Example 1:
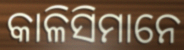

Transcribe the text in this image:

କାଳିସିମାନେ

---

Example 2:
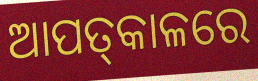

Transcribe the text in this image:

ଆପତ୍‌କାଳରେ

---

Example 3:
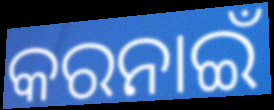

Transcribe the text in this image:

କରନାଇଁ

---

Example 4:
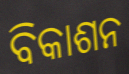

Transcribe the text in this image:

ବିକାଶନ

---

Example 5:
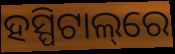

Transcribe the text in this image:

ହସ୍ପିଟାଲ୍‌ରେ